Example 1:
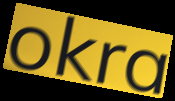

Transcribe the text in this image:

okra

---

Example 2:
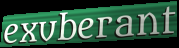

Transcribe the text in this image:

exuberant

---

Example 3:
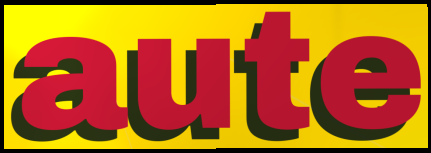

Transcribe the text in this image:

aute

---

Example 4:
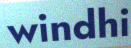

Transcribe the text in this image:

windhi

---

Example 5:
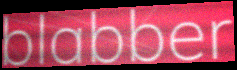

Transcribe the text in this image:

blabber